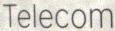
Telecom